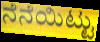
ನೆನೆಯಿಟ್ಟು